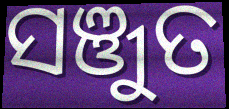
ସଞ୍ଜୁତ